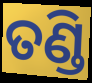
ତଣ୍ଡି